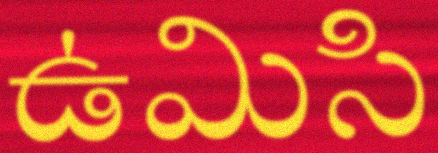
ఉమిసి